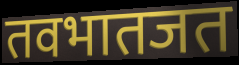
तवभातजत